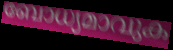
ബോധ്യമാവുക